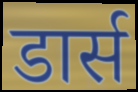
डार्स